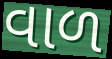
વાળ